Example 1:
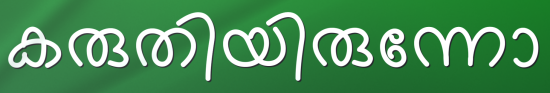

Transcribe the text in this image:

കരുതിയിരുന്നോ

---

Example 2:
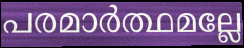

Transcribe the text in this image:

പരമാർത്ഥമല്ലേ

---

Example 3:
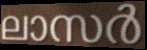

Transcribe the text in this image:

ലാസർ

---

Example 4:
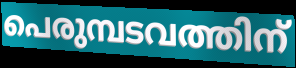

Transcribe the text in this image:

പെരുമ്പടവത്തിന്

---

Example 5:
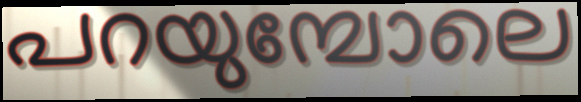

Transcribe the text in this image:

പറയുമ്പോലെ